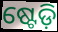
ଷ୍ଟେଡ଼ି